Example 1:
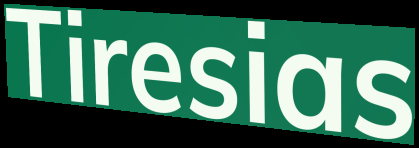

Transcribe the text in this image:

Tiresias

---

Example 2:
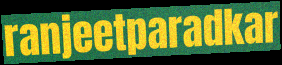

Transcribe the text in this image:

ranjeetparadkar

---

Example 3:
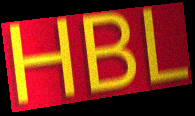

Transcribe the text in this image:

HBL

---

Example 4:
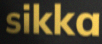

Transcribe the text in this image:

sikka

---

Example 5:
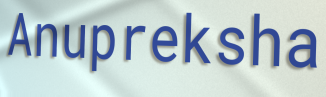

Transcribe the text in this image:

Anupreksha